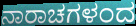
ನಾರಾಚಗಳಂದ